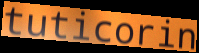
tuticorin